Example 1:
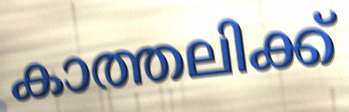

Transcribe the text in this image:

കാത്തലിക്ക്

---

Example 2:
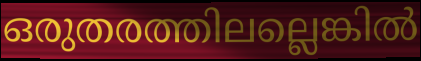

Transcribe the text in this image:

ഒരുതരത്തിലല്ലെങ്കിൽ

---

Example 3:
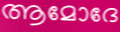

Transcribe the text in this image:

ആമോദേ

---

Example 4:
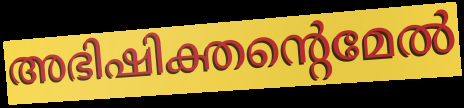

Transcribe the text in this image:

അഭിഷിക്തന്റെമേൽ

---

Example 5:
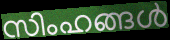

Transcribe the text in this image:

സിംഹങ്ങൾ